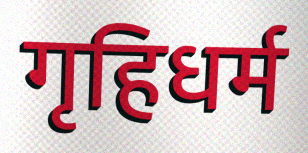
गृहिधर्म